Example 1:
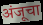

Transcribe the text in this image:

अंजूचा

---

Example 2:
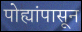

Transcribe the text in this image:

पोह्यांपासून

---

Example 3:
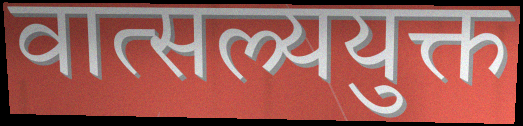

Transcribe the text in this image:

वात्सल्ययुक्त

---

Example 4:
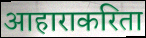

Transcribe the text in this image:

आहाराकरिता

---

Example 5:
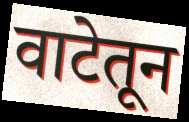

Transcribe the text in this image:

वाटेतून